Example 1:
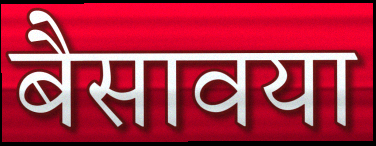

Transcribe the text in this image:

बैसावया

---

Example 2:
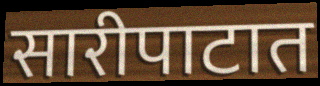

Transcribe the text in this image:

सारीपाटात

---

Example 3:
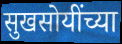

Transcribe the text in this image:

सुखसोयींच्या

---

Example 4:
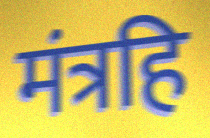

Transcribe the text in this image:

मंत्रहि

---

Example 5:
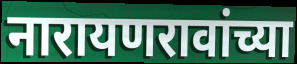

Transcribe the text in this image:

नारायणरावांच्या